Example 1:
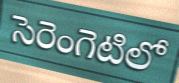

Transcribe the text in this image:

సెరెంగెటిలో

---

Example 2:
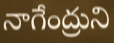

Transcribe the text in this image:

నాగేంద్రుని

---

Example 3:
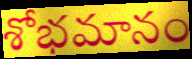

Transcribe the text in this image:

శోభమానం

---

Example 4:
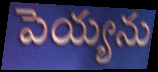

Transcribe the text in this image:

పెయ్యను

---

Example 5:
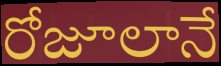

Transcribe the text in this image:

రోజూలానే